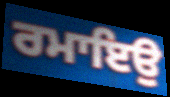
ਰਮਾਇਉ